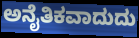
ಅನೈತಿಕವಾದುದು